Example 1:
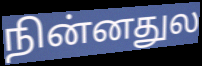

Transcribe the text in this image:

நின்னதுல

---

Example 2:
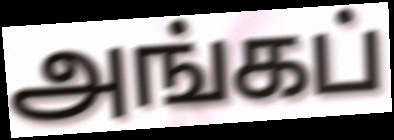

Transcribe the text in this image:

அங்கப்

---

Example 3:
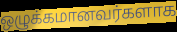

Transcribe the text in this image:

ஒழுக்கமானவர்களாக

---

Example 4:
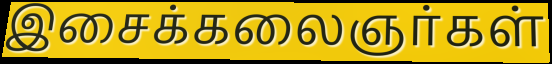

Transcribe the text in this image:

இசைக்கலைஞர்கள்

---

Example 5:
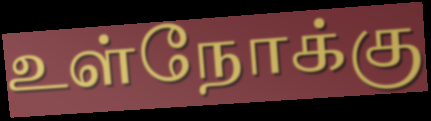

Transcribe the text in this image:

உள்நோக்கு